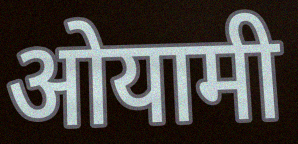
ओयामी